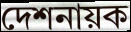
দেশনায়ক